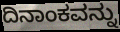
ದಿನಾಂಕವನ್ನು